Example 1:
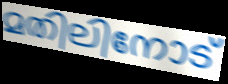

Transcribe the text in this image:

മതിലിനോട്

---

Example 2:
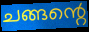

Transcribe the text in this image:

ചങ്ങന്റെ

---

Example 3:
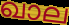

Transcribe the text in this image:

ഖാല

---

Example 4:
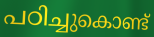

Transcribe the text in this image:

പഠിച്ചുകൊണ്ട്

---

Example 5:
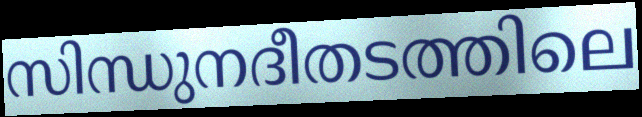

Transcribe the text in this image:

സിന്ധുനദീതടത്തിലെ